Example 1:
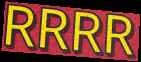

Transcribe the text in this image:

RRRR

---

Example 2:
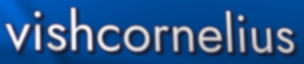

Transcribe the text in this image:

vishcornelius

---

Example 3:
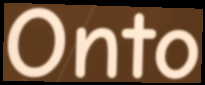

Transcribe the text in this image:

Onto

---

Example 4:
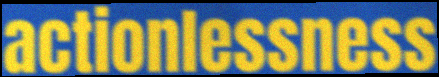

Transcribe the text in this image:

actionlessness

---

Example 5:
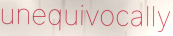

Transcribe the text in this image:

unequivocally